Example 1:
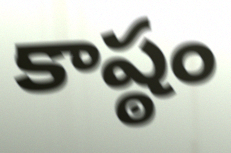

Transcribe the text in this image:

కాష్ఠం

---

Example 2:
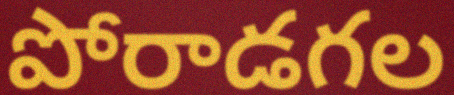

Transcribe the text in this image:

పోరాడగల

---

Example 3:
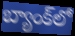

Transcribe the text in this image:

బ్యాంక్‌లో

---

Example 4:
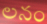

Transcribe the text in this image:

లనం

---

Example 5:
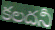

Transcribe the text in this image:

కలదనీ